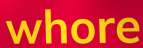
whore